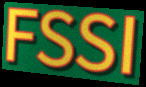
FSSI